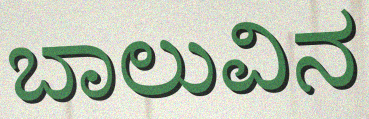
ಬಾಲುವಿನ